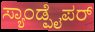
ಸ್ಯಾಂಡ್ಪೈಪರ್